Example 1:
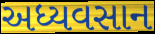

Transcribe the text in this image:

અધ્યવસાન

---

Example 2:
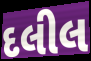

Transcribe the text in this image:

દલીલ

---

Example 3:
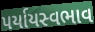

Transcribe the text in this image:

પર્યાયસ્વભાવ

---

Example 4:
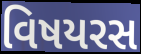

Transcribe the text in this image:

વિષયરસ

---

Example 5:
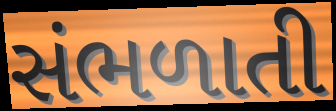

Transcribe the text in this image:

સંભળાતી